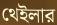
থেইলার